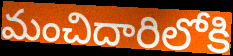
మంచిదారిలోకి